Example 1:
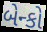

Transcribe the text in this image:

બેન્કો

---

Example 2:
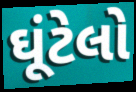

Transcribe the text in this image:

ઘૂંટેલો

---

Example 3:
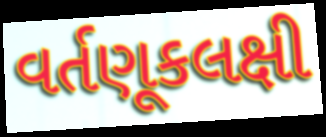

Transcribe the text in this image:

વર્તણૂકલક્ષી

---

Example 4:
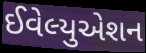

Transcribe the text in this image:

ઈવેલ્યુએશન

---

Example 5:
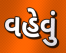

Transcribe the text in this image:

વહેવું